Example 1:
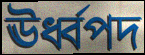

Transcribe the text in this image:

ঊর্ধ্বপদ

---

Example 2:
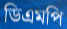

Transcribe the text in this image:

ডিএমপি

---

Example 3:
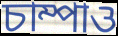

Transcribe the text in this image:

চাম্পাও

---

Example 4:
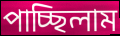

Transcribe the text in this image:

পাচ্ছিলাম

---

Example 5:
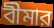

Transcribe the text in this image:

বীমার